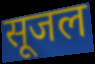
सूजल